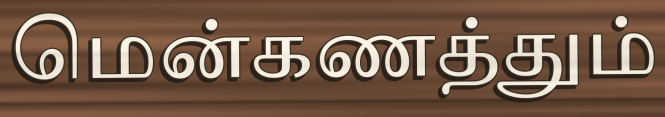
மென்கணத்தும்